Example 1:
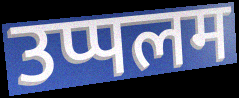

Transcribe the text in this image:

उप्पलम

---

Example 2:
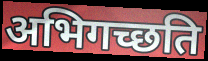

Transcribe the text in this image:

अभिगच्छति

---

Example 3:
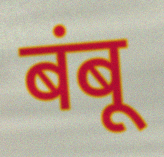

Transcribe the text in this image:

बंबू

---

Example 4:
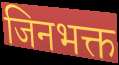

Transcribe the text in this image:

जिनभक्त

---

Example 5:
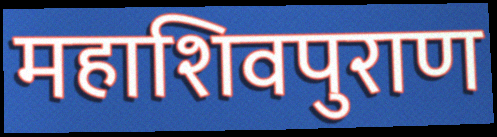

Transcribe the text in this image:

महाशिवपुराण